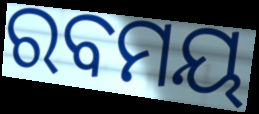
ରବମୟ